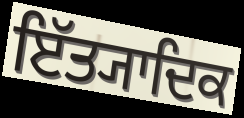
ਇੱਤ੍ਯਾਦਿਕ